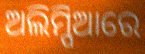
ଅଲିମ୍ପିଆରେ